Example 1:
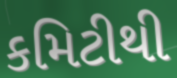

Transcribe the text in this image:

કમિટીથી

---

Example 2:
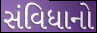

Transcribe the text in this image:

સંવિધાનો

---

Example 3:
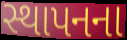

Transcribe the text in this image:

સ્થાપનના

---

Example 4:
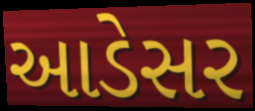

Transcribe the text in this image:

આડેસર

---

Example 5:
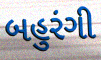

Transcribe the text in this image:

બહુરંગી